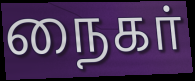
நைகர்